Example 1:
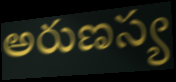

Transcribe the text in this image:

అరుణస్య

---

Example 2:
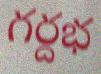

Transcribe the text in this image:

గర్దభ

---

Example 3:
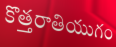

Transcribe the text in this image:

కొత్తరాతియుగం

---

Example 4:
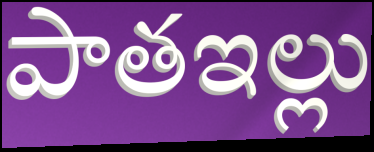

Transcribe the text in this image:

పాతఇల్లు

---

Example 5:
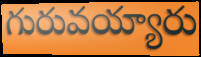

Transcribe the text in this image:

గురువయ్యారు